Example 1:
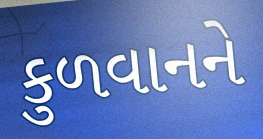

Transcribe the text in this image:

કુળવાનને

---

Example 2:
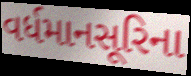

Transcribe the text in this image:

વર્ધમાનસૂરિના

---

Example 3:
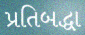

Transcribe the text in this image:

પ્રતિબદ્ધા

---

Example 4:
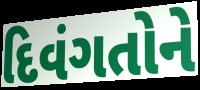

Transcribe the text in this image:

દિવંગતોને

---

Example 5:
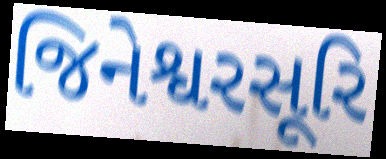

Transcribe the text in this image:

જિનેશ્વરસૂરિ